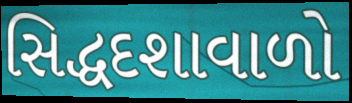
સિદ્ધદશાવાળો